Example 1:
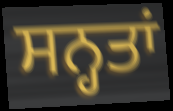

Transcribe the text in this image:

ਸਨ੍ਹਤਾਂ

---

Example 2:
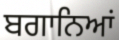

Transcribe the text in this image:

ਬਗਾਨਿਆਂ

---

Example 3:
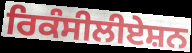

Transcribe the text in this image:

ਰਿਕੰਸੀਲੀਏਸ਼ਨ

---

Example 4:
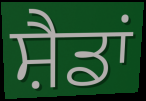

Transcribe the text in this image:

ਸ਼ੈਡਾਂ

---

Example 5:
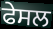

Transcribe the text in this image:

ਫੇਸਲ